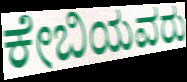
ಕೇಬಿಯವರು